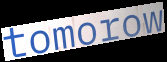
tomorow